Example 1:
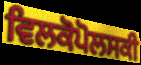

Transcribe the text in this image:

ਵਿਲਕੋਪੋਲਸਕੀ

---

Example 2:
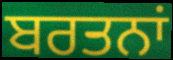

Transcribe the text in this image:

ਬਰਤਨਾਂ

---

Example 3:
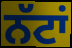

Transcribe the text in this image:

ਨੱਟਾਂ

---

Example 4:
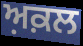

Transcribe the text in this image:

ਅ਼ਕ਼ਲ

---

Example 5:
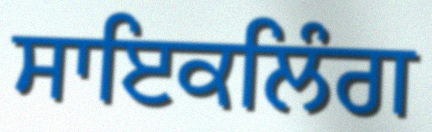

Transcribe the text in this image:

ਸਾਇਕਲਿੰਗ